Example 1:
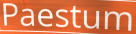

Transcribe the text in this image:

Paestum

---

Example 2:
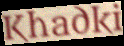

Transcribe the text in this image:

Khadki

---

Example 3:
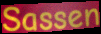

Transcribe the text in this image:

Sassen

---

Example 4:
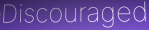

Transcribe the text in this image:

Discouraged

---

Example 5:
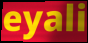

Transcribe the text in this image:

eyali